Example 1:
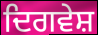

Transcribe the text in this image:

ਦਿਗਵੇਸ਼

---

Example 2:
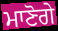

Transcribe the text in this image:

ਮਾਣੋਗੇ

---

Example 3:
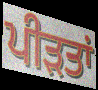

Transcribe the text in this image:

ਪੀਡ਼ਤਾਂ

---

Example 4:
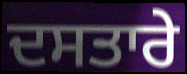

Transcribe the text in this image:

ਦਸਤਾਰੇ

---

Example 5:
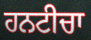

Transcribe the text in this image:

ਹਨਟੀਚਾ